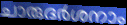
ചാരുദർശനാം